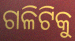
ଗଳିଟିକୁ